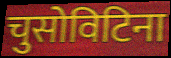
चुसोविटिना